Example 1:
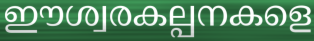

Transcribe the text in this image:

ഈശ്വരകല്പനകളെ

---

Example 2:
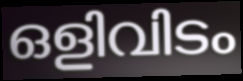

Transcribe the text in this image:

ഒളിവിടം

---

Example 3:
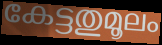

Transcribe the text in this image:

കേട്ടതുമൂലം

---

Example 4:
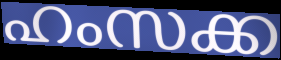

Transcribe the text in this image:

ഹംസക്ക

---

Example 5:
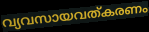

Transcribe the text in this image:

വ്യവസായവത്കരണം